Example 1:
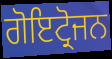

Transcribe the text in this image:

ਗੋਇਟ੍ਰੋਜਨ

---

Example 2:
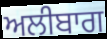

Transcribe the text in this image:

ਅਲੀਬਾਗ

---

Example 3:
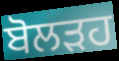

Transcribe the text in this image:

ਬੋਲੜਹ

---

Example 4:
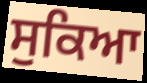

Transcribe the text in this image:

ਸੁਕਿਆ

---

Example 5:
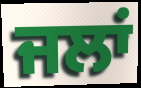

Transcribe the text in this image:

ਜਲਾਂ